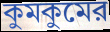
কুমকুমের